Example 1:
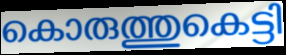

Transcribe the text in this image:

കൊരുത്തുകെട്ടി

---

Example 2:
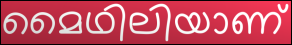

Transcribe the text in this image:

മൈഥിലിയാണ്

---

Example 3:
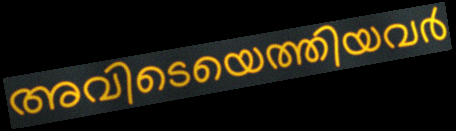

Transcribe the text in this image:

അവിടെയെത്തിയവർ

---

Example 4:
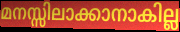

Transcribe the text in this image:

മനസ്സിലാക്കാനാകില്ല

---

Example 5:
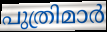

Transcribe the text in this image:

പുത്രിമാർ